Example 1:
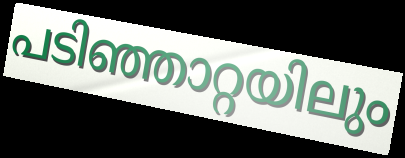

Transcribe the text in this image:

പടിഞ്ഞാറ്റയിലും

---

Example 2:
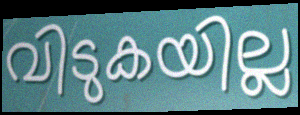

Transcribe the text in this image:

വിടുകയില്ല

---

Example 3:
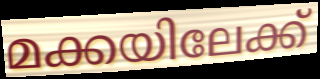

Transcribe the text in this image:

മക്കയിലേക്ക്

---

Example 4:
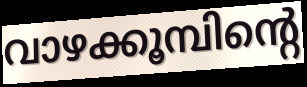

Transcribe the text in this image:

വാഴക്കൂമ്പിന്റെ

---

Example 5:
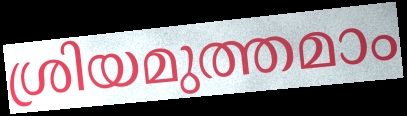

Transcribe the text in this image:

ശ്രിയമുത്തമാം